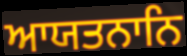
ਆਯਤਨਾਨਿ